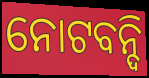
ନୋଟବନ୍ଦି